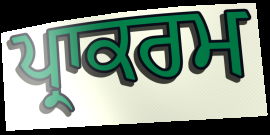
ਪ੍ਰਾਕਰਮ